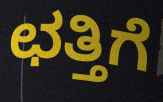
ಛತ್ತಿಗೆ